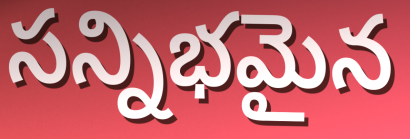
సన్నిభమైన